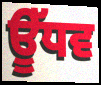
ਊੱਧਵ